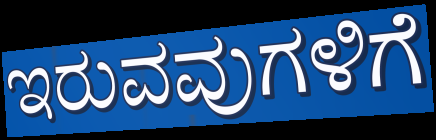
ಇರುವವುಗಳಿಗೆ